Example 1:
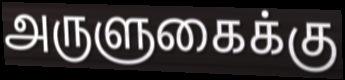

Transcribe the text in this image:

அருளுகைக்கு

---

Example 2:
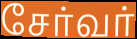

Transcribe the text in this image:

சேர்வர்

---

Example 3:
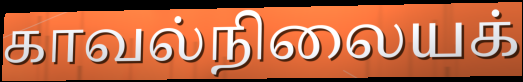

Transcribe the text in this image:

காவல்நிலையக்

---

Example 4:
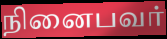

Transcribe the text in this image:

நினைபவர்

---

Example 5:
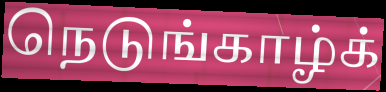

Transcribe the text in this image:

நெடுங்காழ்க்